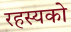
रहस्यको